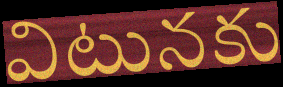
విటునకు